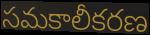
సమకాలీకరణ